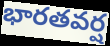
భారతవర్ష